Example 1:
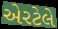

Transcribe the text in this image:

એરટેલે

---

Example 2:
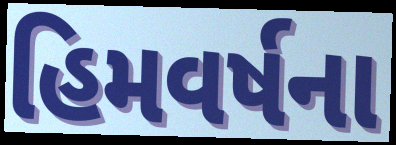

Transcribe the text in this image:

હિમવર્ષના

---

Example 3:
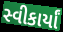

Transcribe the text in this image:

સ્વીકાર્યાં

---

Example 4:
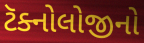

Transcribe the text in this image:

ટૅક્નોલોજીનો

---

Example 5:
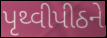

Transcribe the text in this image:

પૃથ્વીપીઠને